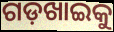
ଗଡ଼ଖାଇକୁ